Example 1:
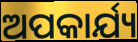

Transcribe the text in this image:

ଅପକାର୍ଯ୍ୟ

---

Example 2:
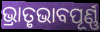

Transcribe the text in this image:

ଭ୍ରାତୃଭାବପୂର୍ଣ୍ଣ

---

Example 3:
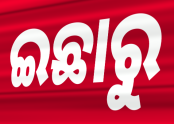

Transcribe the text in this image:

ଇଛାରୁ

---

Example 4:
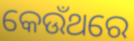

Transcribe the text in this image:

କେଉଁଥରେ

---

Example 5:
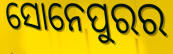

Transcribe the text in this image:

ସୋନେପୁରର